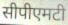
सीपीएमटी